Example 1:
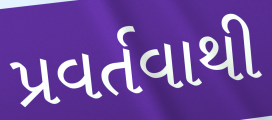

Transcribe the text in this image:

પ્રવર્તવાથી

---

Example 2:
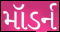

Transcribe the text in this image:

મૉડર્ન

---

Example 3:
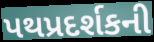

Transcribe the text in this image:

પથપ્રદર્શકની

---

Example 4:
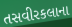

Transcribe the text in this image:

તસવીરકલાના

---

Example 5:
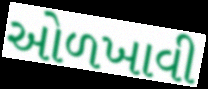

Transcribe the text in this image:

ઓળખાવી